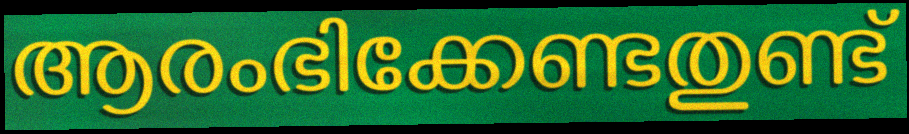
ആരംഭിക്കേണ്ടതുണ്ട്